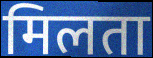
मिलता